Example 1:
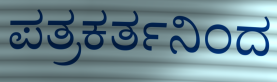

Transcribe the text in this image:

ಪತ್ರಕರ್ತನಿಂದ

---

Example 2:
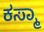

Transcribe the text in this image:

ಕಸ್ಮಾ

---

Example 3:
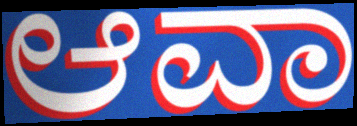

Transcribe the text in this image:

ಆವಾ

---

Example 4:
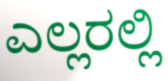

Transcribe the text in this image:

ಎಲ್ಲರಲ್ಲಿ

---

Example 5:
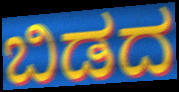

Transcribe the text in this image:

ಬಿಡದ